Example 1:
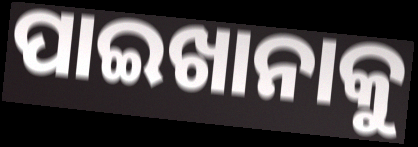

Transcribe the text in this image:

ପାଇଖାନାକୁ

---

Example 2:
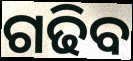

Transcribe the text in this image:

ଗଢିବ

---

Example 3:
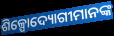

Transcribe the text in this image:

ଶିଳ୍ପୋଦ୍ୟୋଗୀମାନଙ୍କ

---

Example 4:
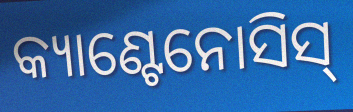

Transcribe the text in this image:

କ୍ୟାଣ୍ଟେନୋସିସ୍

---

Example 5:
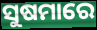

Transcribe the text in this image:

ସୁଷମାରେ